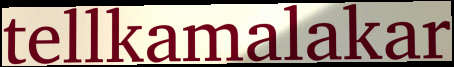
tellkamalakar